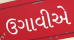
ઉગાવીએ